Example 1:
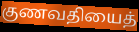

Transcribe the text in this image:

குணவதியைத்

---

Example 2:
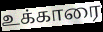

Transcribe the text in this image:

உக்காரை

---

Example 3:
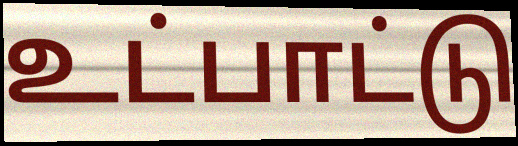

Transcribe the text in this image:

உட்பாட்டு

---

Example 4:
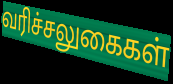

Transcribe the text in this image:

வரிச்சலுகைகள்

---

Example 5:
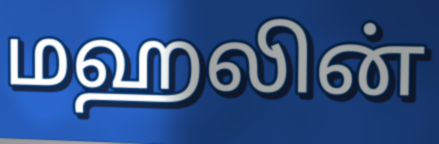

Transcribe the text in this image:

மஹலின்